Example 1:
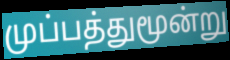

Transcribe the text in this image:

முப்பத்துமூன்று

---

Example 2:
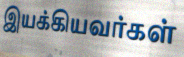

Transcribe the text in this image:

இயக்கியவர்கள்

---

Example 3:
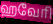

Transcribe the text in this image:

ஹவேரி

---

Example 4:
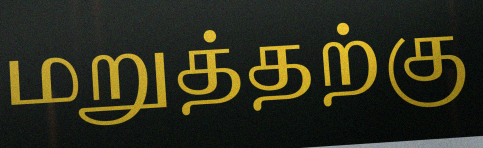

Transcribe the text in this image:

மறுத்தற்கு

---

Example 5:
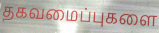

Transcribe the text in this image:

தகவமைப்புகளை